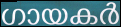
ഗായകർ